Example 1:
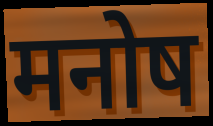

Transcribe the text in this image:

मनोष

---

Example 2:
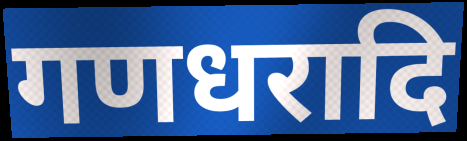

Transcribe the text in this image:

गणधरादि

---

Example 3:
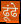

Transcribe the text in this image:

ढूंढे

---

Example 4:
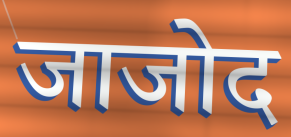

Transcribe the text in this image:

जाजोद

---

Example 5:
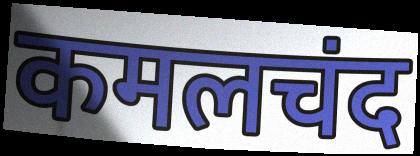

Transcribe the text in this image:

कमलचंद